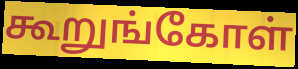
கூறுங்கோள்